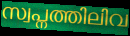
സ്വപ്നത്തിലിവ